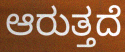
ಆರುತ್ತದೆ